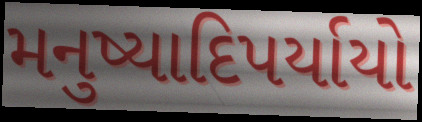
મનુષ્યાદિપર્યાયો